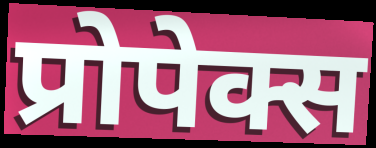
प्रोपेक्स